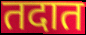
तदात